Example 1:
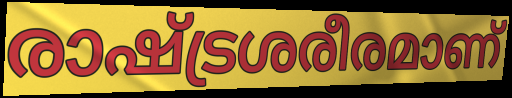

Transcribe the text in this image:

രാഷ്ട്രശരീരമാണ്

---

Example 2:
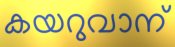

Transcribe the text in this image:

കയറുവാന്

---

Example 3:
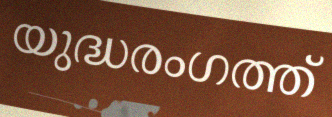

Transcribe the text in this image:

യുദ്ധരംഗത്ത്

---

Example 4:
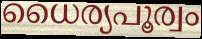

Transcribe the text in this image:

ധൈര്യപൂര്വം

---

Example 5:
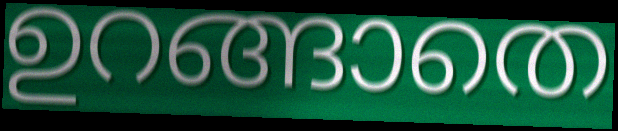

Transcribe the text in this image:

ഉറങ്ങാതെ